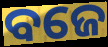
ବଜେ